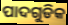
ପାଦଗୁଡିକ